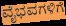
ವೈಭವಗಳಿಗೆ